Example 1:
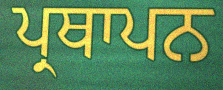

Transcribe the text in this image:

ਪ੍ਰਥਾਪਨ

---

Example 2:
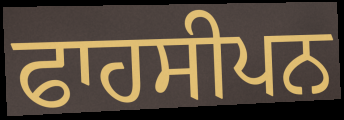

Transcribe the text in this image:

ਫਾਹਸੀਪਨ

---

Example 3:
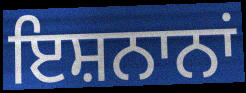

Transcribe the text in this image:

ਇਸ਼ਨਾਨਾਂ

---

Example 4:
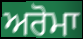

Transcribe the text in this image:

ਅਰੋਮਾ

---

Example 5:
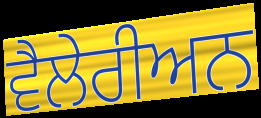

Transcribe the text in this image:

ਵੈਲੇਰੀਅਨ